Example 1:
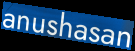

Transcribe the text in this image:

anushasan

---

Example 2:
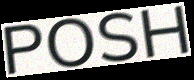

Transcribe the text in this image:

POSH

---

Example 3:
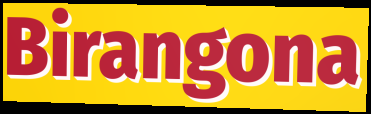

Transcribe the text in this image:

Birangona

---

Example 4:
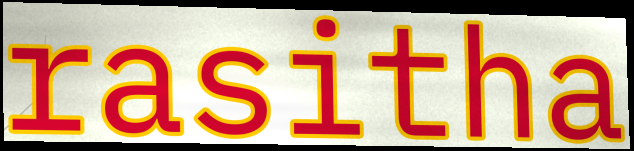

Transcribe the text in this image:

rasitha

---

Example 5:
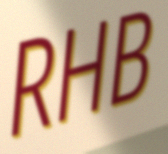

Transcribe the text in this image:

RHB